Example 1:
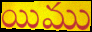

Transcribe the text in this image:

యిము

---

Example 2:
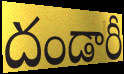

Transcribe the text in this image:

దండారీ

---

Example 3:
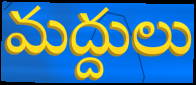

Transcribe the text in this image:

మద్దులు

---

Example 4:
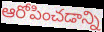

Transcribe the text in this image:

ఆరోపించడాన్ని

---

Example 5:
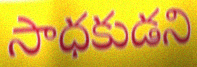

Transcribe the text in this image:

సాధకుడని